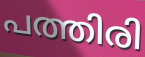
പത്തിരി